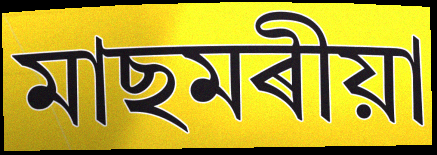
মাছমৰীয়া